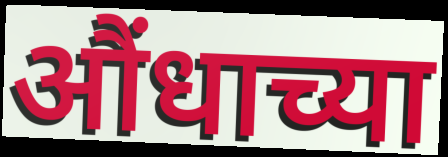
औंधाच्या